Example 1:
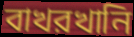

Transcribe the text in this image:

বাখরখানি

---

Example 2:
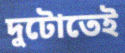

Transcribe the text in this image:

দুটোতেই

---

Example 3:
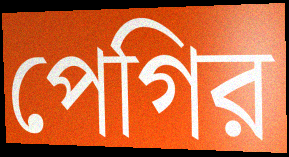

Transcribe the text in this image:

পেগির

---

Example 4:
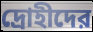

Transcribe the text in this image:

দ্রোহীদের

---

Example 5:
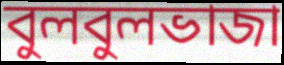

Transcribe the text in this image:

বুলবুলভাজা